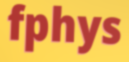
fphys